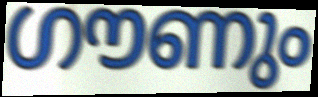
ഗൗണും